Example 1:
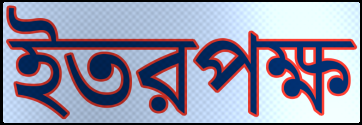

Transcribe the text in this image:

ইতরপক্ষ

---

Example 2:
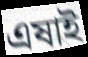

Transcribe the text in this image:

এষাই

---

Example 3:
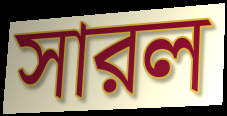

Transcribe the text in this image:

সারল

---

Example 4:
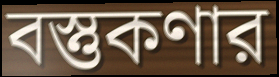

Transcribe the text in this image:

বস্তুকণার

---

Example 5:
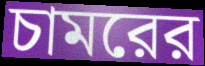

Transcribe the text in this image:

চামরের